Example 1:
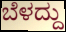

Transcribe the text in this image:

ಬೆಳದ್ದು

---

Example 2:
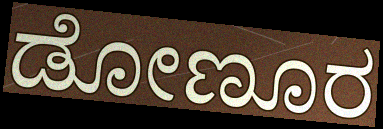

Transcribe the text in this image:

ಡೋಣೂರ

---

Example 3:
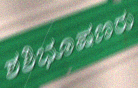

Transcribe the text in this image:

ಶಶಿಭೂಷಣರು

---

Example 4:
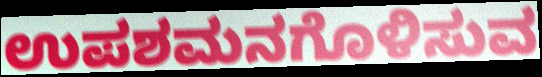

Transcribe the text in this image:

ಉಪಶಮನಗೊಳಿಸುವ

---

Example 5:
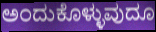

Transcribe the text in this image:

ಅಂದುಕೊಳ್ಳುವುದೂ